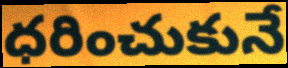
ధరించుకునే